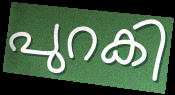
പുറകി